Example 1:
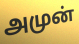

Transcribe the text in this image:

அமுன்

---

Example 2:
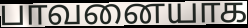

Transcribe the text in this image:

பாவனையாக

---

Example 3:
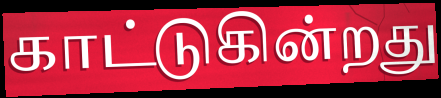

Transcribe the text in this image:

காட்டுகின்றது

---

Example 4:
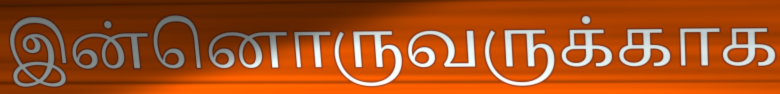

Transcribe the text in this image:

இன்னொருவருக்காக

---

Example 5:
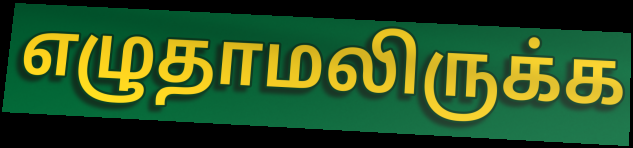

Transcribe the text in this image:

எழுதாமலிருக்க